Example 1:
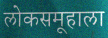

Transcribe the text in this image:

लोकसमूहाला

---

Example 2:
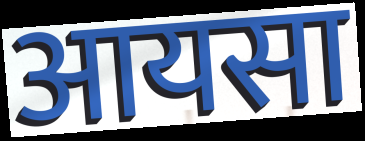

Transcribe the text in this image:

आयसा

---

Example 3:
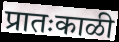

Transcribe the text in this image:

प्रातःकाळी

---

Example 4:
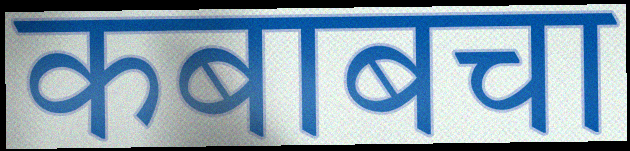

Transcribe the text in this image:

कबाबचा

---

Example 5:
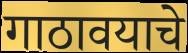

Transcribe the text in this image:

गाठावयाचे